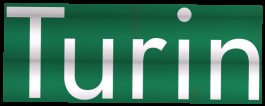
Turin